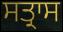
ਸਤ੍ਰਾਸ